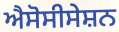
ਐਸੋਸੀਸੇਸ਼ਨ